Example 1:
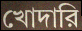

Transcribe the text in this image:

খোদারি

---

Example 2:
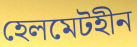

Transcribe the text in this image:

হেলমেটহীন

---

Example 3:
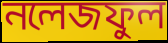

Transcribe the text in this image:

নলেজফুল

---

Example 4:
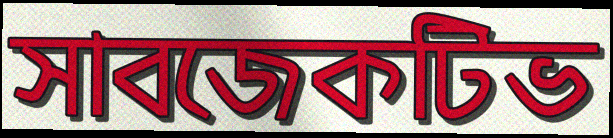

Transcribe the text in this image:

সাবজেকটিভ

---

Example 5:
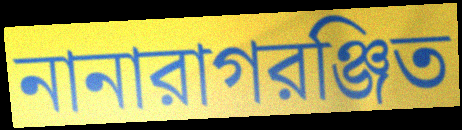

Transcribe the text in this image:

নানারাগরঞ্জিত